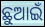
ଛୁଆଇଁ